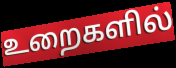
உறைகளில்